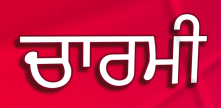
ਚਾਰਮੀ